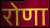
रोणा